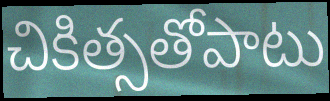
చికిత్సతోపాటు